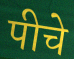
पीचे